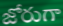
జోరుగా